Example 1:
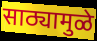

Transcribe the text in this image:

साठ्यामुळे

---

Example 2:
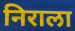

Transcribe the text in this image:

निराला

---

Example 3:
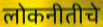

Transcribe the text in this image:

लोकनीतीचे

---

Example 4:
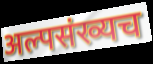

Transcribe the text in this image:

अल्पसंख्यच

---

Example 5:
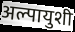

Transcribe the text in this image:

अल्पायुशी